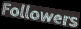
Followers